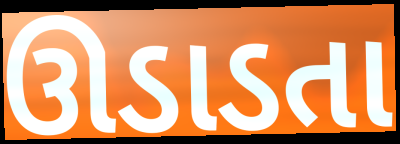
ઊડાડતા